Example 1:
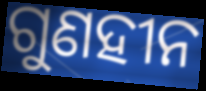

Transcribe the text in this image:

ଗୁଣହୀନ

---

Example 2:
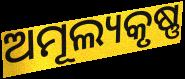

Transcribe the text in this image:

ଅମୂଲ୍ୟକୃଷ୍ଣ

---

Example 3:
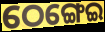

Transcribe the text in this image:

ଠେଙ୍ଗେଇ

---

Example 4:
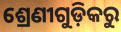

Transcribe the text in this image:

ଶ୍ରେଣୀଗୁଡ଼ିକରୁ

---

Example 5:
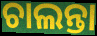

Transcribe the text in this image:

ଚାଲନ୍ତା